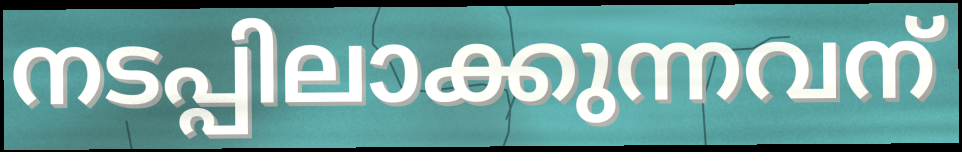
നടപ്പിലാക്കുന്നവന്